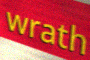
wrath